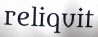
reliquit